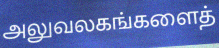
அலுவலகங்களைத்